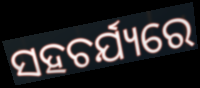
ସହଚର୍ଯ୍ୟରେ